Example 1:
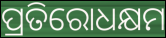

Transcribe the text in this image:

ପ୍ରତିରୋଧକ୍ଷମ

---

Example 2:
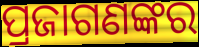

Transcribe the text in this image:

ପ୍ରଜାଗଣଙ୍କର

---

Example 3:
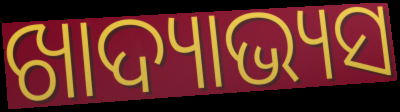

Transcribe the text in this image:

ଖାଦ୍ୟାଭ୍ୟସ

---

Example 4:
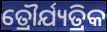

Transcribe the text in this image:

ତ୍ରୌର୍ଯ୍ୟତ୍ରିକ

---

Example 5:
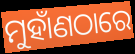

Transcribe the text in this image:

ମୁହାଁଣଠାରେ